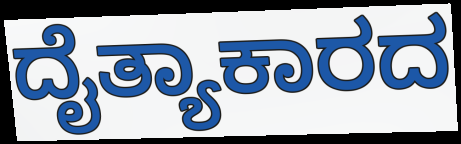
ದೈತ್ಯಾಕಾರದ